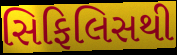
સિફિલિસથી